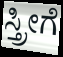
ಸ್ತ್ರೀಗೆ